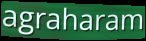
agraharam